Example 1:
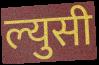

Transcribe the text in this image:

ल्युसी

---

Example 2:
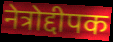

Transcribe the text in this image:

नेत्रोद्दीपक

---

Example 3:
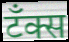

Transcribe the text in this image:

टँक्स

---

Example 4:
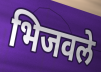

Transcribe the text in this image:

भिजवले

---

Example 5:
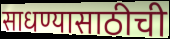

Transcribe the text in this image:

साधण्यासाठीची